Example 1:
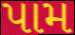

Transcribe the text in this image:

પામ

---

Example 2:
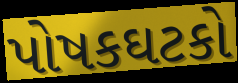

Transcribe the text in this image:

પોષકઘટકો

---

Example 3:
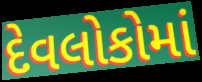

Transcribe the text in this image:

દેવલોકોમાં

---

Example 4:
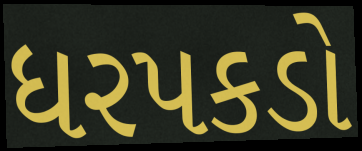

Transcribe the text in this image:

ધરપકડો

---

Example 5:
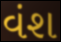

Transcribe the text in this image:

વંશ